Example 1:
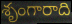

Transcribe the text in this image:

శృంగారాది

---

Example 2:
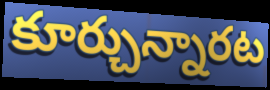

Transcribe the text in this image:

కూర్చున్నారట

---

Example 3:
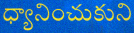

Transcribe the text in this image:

ధ్యానించుకుని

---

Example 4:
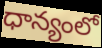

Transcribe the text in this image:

ధాన్యంలో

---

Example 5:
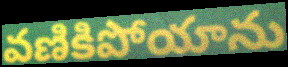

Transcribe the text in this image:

వణికిపోయాను